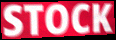
STOCK